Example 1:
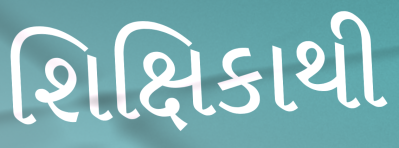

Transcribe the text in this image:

શિક્ષિકાથી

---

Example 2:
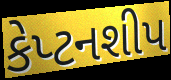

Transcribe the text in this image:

કેપ્ટનશીપ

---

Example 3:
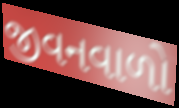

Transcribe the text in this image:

જીવનવાળો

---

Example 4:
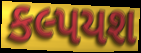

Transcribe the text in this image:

કલ્પયશ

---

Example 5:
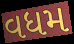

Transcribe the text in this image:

વધમ